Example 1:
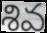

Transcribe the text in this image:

శివ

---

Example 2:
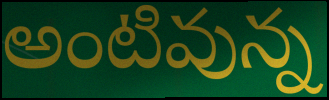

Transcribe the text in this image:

అంటివున్న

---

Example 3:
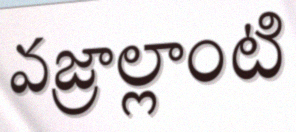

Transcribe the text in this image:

వజ్రాల్లాంటి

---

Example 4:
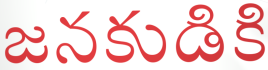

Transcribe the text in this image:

జనకుడికి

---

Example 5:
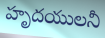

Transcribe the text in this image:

హృదయులనీ